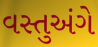
વસ્તુઅંગે